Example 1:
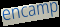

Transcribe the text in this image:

encamp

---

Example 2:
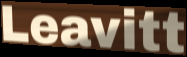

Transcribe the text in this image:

Leavitt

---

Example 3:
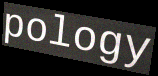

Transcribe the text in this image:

pology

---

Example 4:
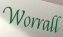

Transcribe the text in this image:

Worrall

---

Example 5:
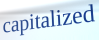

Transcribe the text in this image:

capitalized